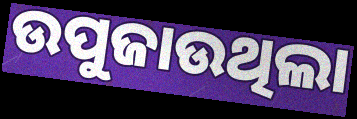
ଉପୁଜାଉଥିଲା